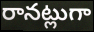
రానట్లుగా